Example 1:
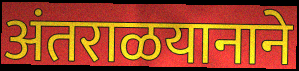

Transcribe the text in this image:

अंतराळयानाने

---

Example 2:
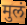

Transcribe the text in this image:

मुलं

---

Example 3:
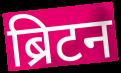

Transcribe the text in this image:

ब्रिटन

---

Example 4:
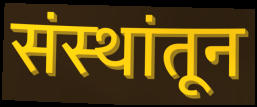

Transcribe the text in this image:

संस्थांतून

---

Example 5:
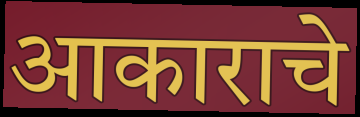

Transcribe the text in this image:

आकाराचे